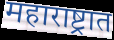
महाराष्ट्रात